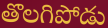
తొలగిపోడు